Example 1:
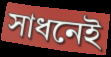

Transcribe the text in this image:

সাধনেই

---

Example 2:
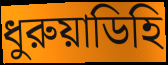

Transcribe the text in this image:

ধুরুয়াডিহি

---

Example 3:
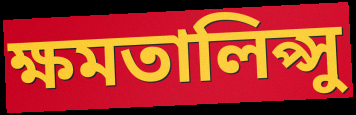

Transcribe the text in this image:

ক্ষমতালিপ্সু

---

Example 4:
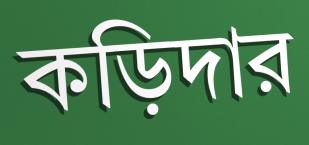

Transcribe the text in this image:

কড়িদার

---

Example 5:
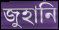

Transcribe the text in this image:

জুহানি